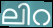
ലിറ